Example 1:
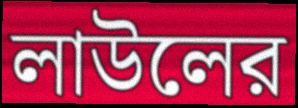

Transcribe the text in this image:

লাউলের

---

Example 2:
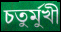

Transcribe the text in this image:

চতুর্মুখী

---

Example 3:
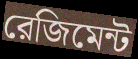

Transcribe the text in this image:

রেজিমেন্ট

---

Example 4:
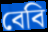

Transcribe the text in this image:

বেবি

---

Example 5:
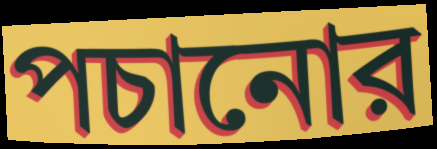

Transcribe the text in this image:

পচানোর